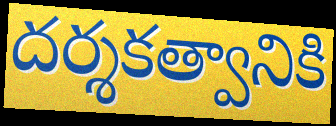
దర్శకత్వానికి